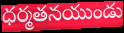
ధర్మతనయుండు